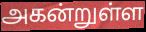
அகன்றுள்ள